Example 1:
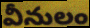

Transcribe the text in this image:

వీనులం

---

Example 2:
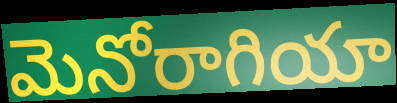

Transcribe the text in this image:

మెనోరాగియా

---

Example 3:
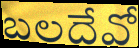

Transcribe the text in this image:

బలదేవో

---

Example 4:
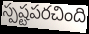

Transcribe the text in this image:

స్పష్టపరచింది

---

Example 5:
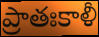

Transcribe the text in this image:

ప్రాతఃకాళీ